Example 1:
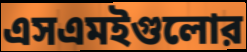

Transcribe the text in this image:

এসএমইগুলোর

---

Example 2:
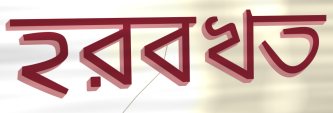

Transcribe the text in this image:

হরবখত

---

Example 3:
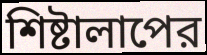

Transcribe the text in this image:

শিষ্টালাপের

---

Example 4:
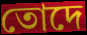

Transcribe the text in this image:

তোদে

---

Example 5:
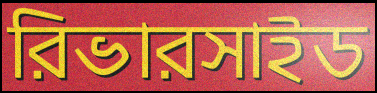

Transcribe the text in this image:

রিভারসাইড